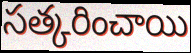
సత్కరించాయి